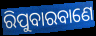
ରିପୁବାରବାଣେ